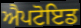
ਐਪਟੋਇਡ